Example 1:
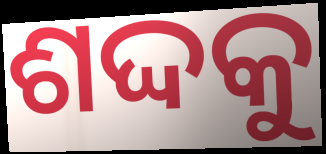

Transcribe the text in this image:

ଶଦ୍ଦକୁ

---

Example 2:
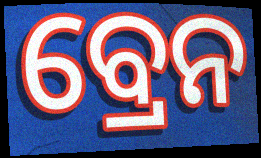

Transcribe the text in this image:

ବ୍ରେନ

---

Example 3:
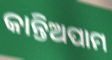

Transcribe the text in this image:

କାନ୍ତିଅପାମ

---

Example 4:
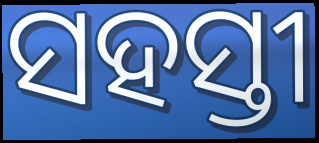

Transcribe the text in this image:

ସହସ୍ତୀ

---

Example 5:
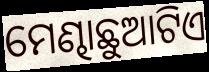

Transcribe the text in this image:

ମେଣ୍ଢାଛୁଆଟିଏ